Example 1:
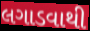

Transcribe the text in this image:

લગાડવાથી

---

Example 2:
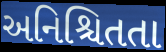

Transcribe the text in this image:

અનિશ્ચિતતા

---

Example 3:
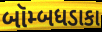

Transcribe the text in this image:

બૉમ્બધડાકા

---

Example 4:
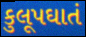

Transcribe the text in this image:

કુલૂપઘાતં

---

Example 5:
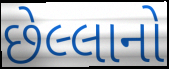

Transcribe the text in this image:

છેલ્લાનો